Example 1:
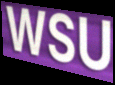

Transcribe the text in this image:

WSU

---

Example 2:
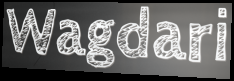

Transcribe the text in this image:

Wagdari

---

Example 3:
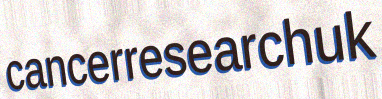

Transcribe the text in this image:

cancerresearchuk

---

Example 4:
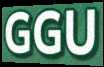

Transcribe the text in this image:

GGU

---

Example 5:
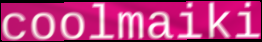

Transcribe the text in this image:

coolmaiki